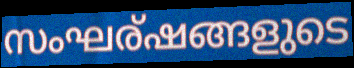
സംഘര്ഷങ്ങളുടെ